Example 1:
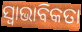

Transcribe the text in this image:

ସ୍ବାଭାବିକତା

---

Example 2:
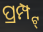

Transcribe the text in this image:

ପ୍ରମ୍ପ୍ଟ୍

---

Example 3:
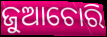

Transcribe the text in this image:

ଜୁଆଚୋରି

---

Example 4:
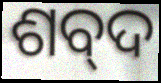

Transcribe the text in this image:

ଶବ୍‍ଦ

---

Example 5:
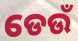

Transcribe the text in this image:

ଡେଉଁ